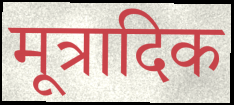
मूत्रादिक